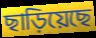
ছাড়িয়েছে